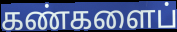
கண்களைப்